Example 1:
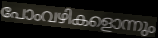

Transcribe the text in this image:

പോംവഴികളൊന്നും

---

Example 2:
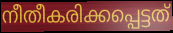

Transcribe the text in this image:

നീതീകരിക്കപ്പെട്ടത്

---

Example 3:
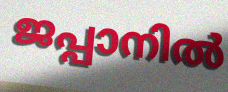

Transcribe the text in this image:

ജപ്പാനിൽ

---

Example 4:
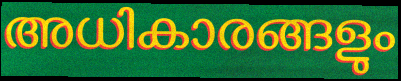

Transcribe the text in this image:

അധികാരങ്ങളും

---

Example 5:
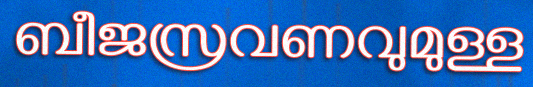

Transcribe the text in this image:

ബീജസ്രവണവുമുള്ള